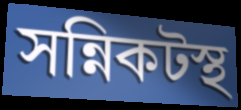
সন্নিকটস্থ